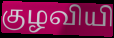
குழவியி